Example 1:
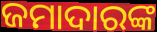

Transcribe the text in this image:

ଜମାଦାରଙ୍କ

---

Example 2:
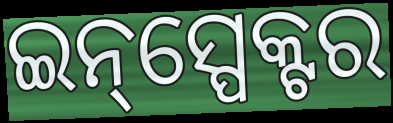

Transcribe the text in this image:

ଇନ୍‌ସ୍ପେକ୍ଟର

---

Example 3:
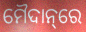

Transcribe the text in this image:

ମୈଦାନ୍‌ରେ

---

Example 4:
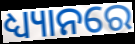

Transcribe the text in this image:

ଧ୍ୟ୍ୟାନରେ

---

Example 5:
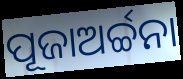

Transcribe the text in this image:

ପୂଜାଅର୍ଚ୍ଚନା